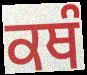
ਕਥੰ